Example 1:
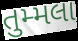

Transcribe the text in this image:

તુમ્મલા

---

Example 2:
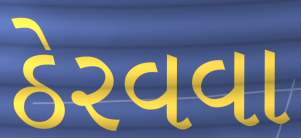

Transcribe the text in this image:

ઠેરવવા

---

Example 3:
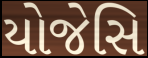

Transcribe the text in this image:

યોજેસિ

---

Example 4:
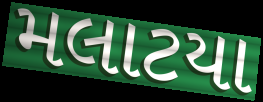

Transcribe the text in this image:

મલાટયા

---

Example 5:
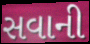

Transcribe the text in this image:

સવાની